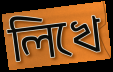
লিখে